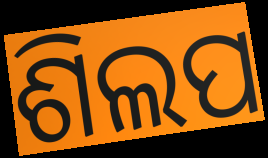
ଶିଲପ